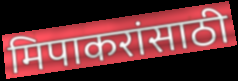
मिपाकरांसाठी